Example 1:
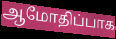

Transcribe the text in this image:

ஆமோதிப்பாக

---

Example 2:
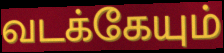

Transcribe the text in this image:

வடக்கேயும்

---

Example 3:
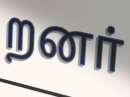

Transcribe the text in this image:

றனர்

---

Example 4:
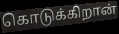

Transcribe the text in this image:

கொடுக்கிறான்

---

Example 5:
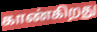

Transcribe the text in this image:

காண்கிறது